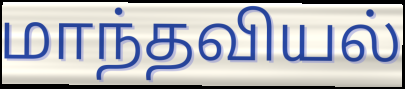
மாந்தவியல்